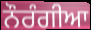
ਨੌਰੰਗੀਆ